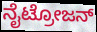
ನೈಟ್ರೋಜನ್